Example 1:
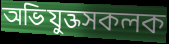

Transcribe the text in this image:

অভিযুক্তসকলক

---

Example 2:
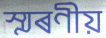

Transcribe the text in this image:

স্মৰণীয়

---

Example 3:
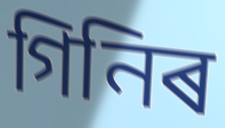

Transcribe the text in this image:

গিনিৰ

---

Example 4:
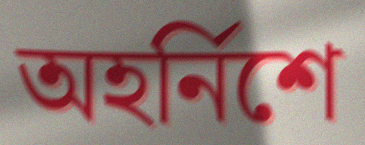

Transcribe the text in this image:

অহৰ্নিশে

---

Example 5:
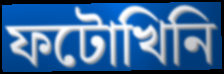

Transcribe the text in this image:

ফটোখিনি